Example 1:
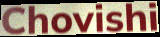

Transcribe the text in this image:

Chovishi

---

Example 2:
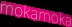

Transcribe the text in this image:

mokamoka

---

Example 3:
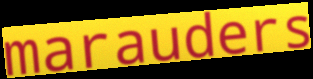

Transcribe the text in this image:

marauders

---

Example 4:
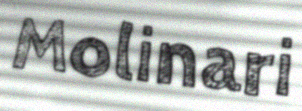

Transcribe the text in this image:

Molinari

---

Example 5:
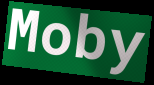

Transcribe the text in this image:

Moby